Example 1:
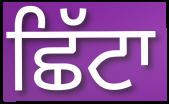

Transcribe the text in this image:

ਛਿੱਟਾ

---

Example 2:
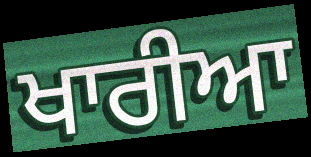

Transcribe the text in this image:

ਖਾਰੀਆ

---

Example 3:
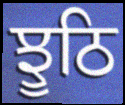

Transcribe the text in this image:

ਝੂਠਿ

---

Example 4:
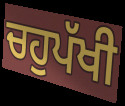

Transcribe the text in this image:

ਚਹੁਪੱਖੀ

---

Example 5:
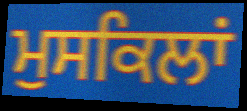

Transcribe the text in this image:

ਮੁਸਕਿਲਾਂ